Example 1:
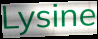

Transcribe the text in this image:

Lysine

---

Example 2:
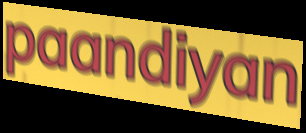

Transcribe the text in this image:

paandiyan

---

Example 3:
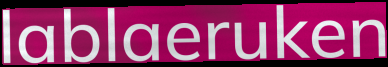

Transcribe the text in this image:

lablaeruken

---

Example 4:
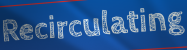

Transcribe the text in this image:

Recirculating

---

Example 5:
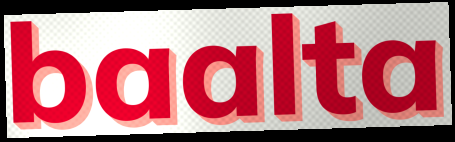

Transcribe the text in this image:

baalta